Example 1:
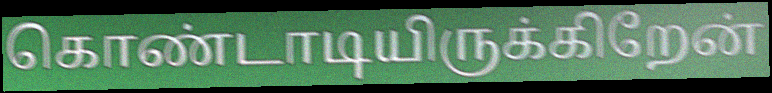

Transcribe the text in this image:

கொண்டாடியிருக்கிறேன்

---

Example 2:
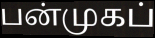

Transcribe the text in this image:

பன்முகப்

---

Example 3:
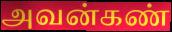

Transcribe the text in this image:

அவன்கண்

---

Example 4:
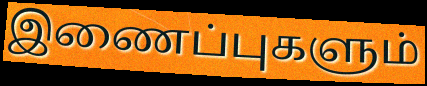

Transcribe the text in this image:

இணைப்புகளும்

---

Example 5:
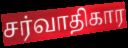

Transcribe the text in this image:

சர்வாதிகார